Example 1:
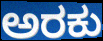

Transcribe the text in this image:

ಅರಕು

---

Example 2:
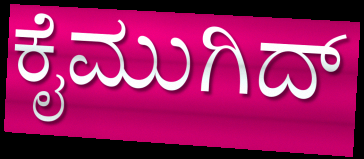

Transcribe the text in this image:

ಕೈಮುಗಿದ್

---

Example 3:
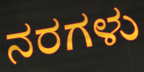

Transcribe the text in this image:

ನರಗಳು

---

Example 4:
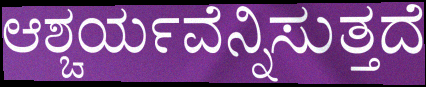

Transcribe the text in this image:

ಆಶ್ಚರ್ಯವೆನ್ನಿಸುತ್ತದೆ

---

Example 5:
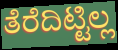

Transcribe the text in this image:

ತೆರೆದಿಟ್ಟಿಲ್ಲ